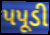
પપૂડી